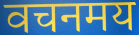
वचनमय